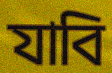
যাবি